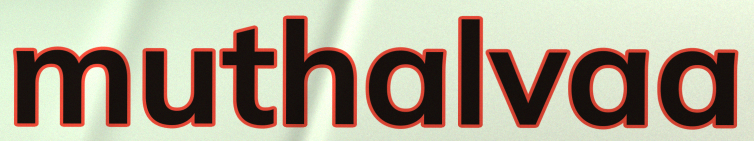
muthalvaa